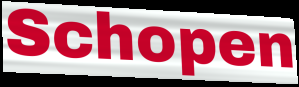
Schopen